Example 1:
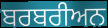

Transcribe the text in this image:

ਬਰਬਰੀਅਨ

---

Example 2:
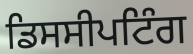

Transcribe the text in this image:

ਡਿਸਸੀਪਟਿੰਗ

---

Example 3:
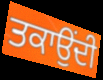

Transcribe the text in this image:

ਤਕਾਉਂਦੀ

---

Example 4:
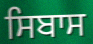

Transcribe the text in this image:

ਸਿਬਾਸ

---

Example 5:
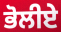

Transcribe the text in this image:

ਭੋਲੀਏ